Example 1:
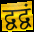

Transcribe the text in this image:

द्वद्वं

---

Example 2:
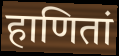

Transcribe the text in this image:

हाणितां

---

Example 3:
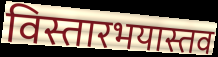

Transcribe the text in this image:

विस्तारभयास्तव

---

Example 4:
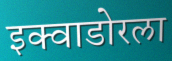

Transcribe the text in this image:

इक्वाडोरला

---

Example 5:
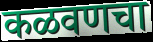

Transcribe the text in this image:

कळवणचा